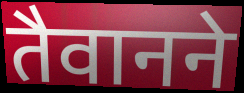
तैवानने